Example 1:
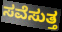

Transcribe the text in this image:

ಸವೆಸುತ್ತ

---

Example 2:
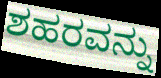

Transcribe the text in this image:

ಶಹರವನ್ನು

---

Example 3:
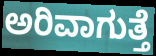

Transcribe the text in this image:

ಅರಿವಾಗುತ್ತೆ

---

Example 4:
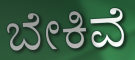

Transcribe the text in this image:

ಬೇಕಿವೆ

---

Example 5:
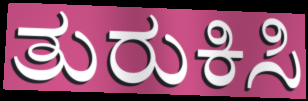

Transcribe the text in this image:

ತುರುಕಿಸಿ